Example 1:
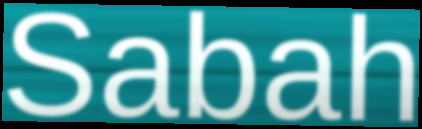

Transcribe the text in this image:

Sabah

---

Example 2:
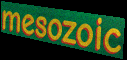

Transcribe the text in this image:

mesozoic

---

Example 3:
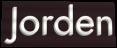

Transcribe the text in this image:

Jorden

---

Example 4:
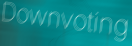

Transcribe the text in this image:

Downvoting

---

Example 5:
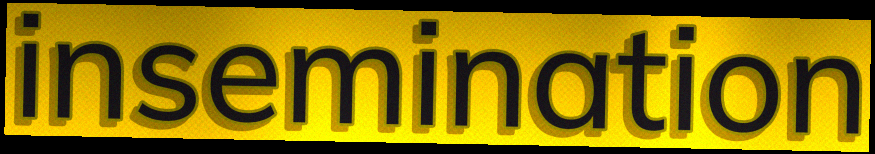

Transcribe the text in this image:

insemination